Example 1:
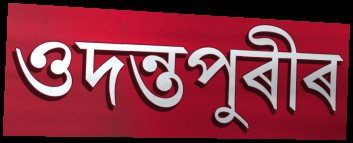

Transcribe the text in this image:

ওদন্তপুৰীৰ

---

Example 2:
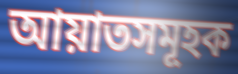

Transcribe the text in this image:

আয়াতসমূহক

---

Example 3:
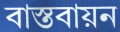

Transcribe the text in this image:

বাস্তবায়ন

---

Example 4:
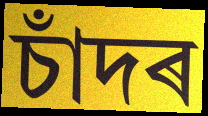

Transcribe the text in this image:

চাঁদৰ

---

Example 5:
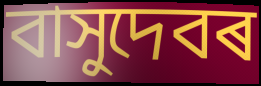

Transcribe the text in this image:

বাসুদেবৰ